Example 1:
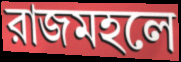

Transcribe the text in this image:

রাজমহলে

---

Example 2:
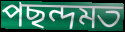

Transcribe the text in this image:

পছন্দমত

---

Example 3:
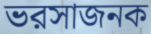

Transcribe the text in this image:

ভরসাজনক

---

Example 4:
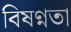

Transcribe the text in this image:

বিষণ্নতা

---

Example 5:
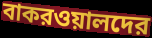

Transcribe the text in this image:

বাকরওয়ালদের